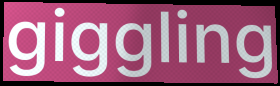
giggling